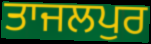
ਤਾਜਲਪੁਰ